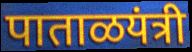
पाताळयंत्री